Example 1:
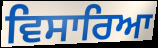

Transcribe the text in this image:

ਵਿਸਾਰਿਆ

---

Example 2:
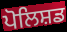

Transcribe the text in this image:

ਪੋਲਿਸ਼ਡ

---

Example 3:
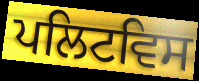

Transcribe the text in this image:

ਪਲਿਟਵਿਸ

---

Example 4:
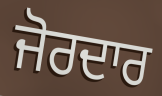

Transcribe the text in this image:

ਜੋਰਦਾਰ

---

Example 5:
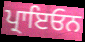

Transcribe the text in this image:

ਪ੍ਰਾਇਓਨ